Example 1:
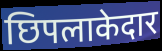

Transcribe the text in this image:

छिपलाकेदार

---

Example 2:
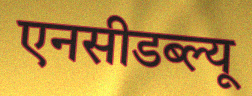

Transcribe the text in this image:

एनसीडब्ल्यू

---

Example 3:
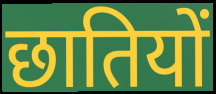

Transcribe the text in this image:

छातियों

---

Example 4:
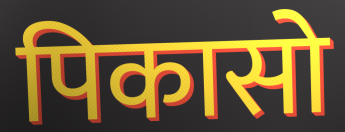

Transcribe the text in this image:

पिकासो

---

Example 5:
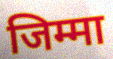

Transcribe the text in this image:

जिम्मा